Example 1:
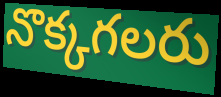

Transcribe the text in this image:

నొక్కగలరు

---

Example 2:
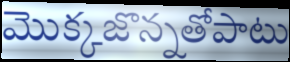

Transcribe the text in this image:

మొక్కజొన్నతోపాటు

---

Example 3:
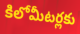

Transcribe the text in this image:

కిలోమీటర్లకు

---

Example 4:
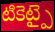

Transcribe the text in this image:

టికెట్పై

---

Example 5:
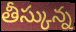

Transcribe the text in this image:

తీస్కున్న